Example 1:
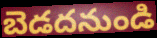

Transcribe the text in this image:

బెడదనుండి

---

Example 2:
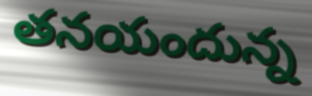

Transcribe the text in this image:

తనయందున్న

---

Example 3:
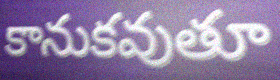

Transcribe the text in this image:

కానుకవుతూ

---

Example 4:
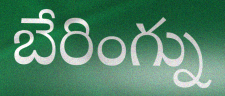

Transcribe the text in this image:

బేరింగ్ను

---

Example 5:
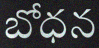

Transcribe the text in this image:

బోధన